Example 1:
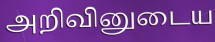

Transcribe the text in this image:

அறிவினுடைய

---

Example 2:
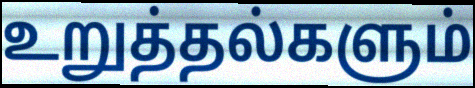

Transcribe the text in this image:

உறுத்தல்களும்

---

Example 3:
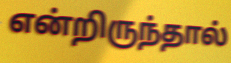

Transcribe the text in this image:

என்றிருந்தால்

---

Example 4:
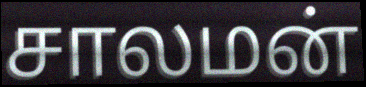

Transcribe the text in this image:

சாலமன்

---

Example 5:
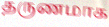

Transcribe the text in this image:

தருணமாக